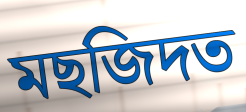
মছজিদত